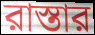
রাস্তার